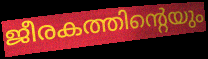
ജീരകത്തിന്റെയും